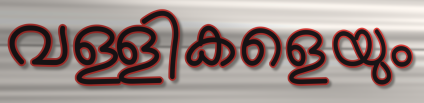
വള്ളികളെയും